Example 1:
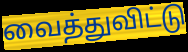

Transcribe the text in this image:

வைத்துவிட்டு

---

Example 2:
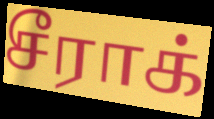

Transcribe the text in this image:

சீராக்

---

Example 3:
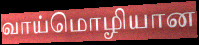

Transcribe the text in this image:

வாய்மொழியான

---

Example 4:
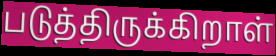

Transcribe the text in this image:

படுத்திருக்கிறாள்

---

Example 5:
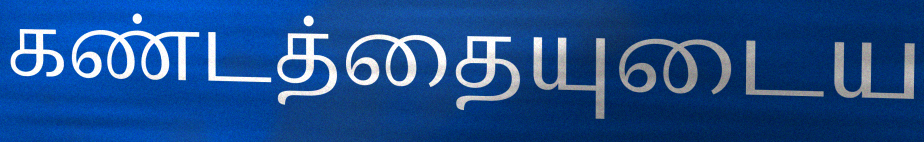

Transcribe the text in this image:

கண்டத்தையுடைய